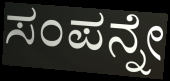
ಸಂಪನ್ನೇ